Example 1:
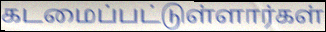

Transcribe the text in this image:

கடமைப்பட்டுள்ளார்கள்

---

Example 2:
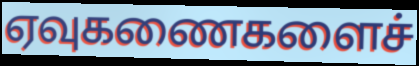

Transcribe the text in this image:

ஏவுகணைகளைச்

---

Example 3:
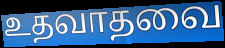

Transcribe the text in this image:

உதவாதவை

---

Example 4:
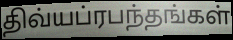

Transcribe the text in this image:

திவ்யப்ரபந்தங்கள்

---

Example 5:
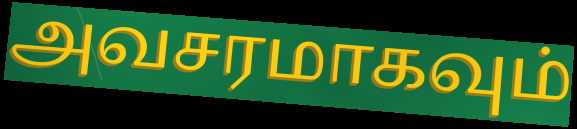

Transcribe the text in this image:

அவசரமாகவும்